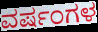
ವರ್ಷಂಗಳ